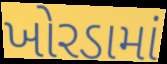
ખોરડામાં